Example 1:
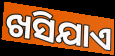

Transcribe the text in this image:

ଖସିଯାଏ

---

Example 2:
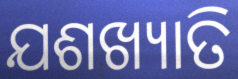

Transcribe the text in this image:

ଯଶଖ୍ୟାତି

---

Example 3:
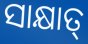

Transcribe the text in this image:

ସାକ୍ଷାତ୍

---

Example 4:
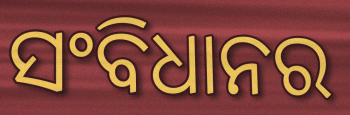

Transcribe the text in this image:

ସଂବିଧାନର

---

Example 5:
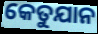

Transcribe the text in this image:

କେତୁଯାନ